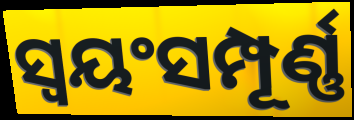
ସ୍ବୟଂସମ୍ପୂର୍ଣ୍ଣ